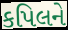
કપિલને